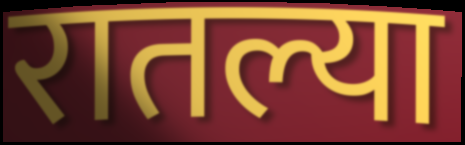
रातल्या